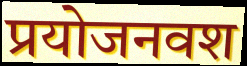
प्रयोजनवश